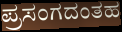
ಪ್ರಸಂಗದಂತಹ